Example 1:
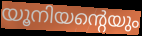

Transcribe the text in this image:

യൂനിയന്റെയും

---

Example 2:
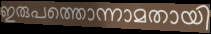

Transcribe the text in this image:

ഇരുപത്തൊന്നാമതായി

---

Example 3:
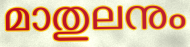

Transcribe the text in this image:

മാതുലനും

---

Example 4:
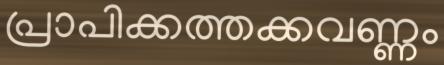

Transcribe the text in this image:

പ്രാപിക്കത്തക്കവണ്ണം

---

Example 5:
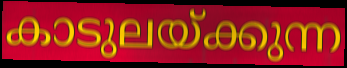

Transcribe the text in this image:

കാടുലയ്ക്കുന്ന